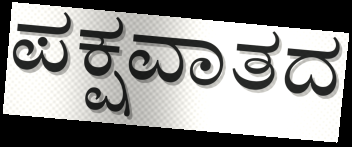
ಪಕ್ಷವಾತದ